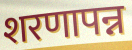
शरणापन्न